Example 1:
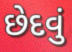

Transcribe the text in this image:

છેદવું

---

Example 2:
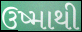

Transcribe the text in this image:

ઉષ્માથી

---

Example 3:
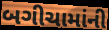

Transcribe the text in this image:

બગીચામાંની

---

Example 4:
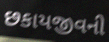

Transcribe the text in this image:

છકાયજીવની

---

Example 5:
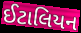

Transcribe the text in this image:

ઈટાલિયન